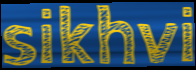
sikhvi